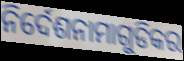
ନିର୍ଦେଶନାମାଗୁଡିକର